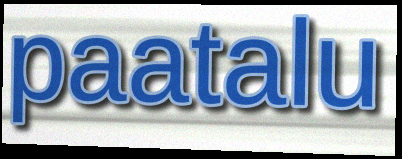
paatalu